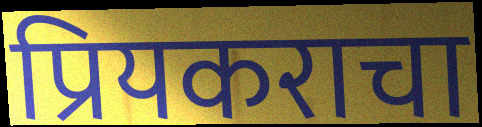
प्रियकराचा